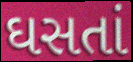
ઘસતાં